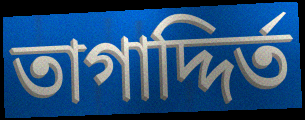
তাগাদ্দির্ত